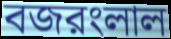
বজরংলাল